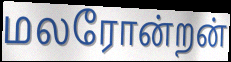
மலரோன்றன்